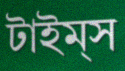
টাইম্স